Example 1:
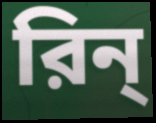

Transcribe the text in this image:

রিন্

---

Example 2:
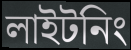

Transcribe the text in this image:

লাইটনিং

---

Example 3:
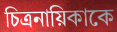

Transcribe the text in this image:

চিত্রনায়িকাকে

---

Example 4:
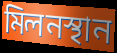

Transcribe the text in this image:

মিলনস্থান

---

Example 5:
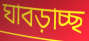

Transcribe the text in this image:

ঘাবড়াচ্ছ